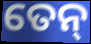
ତେନ୍